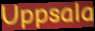
Uppsala